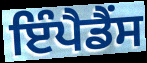
ਇੰਪੈਡੈਂਸ